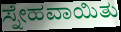
ಸ್ನೇಹವಾಯಿತು